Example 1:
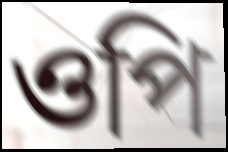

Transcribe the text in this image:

ওপি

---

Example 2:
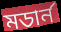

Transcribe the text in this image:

মডার্ন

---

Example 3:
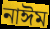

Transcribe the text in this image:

নাঈম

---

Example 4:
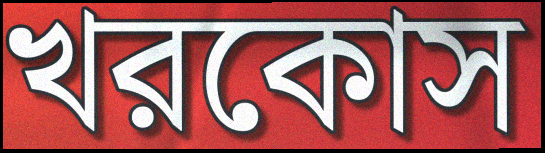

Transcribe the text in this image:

খরকোস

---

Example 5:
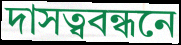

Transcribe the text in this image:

দাসত্ববন্ধনে